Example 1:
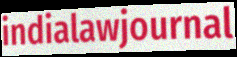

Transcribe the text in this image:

indialawjournal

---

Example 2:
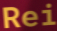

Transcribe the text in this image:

Rei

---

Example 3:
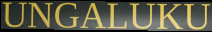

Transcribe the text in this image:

UNGALUKU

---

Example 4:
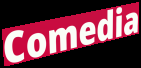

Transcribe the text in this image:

Comedia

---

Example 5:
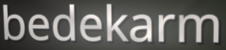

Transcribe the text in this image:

bedekarm